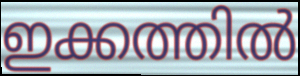
ഇക്കത്തിൽ